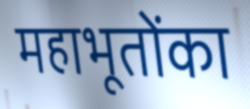
महाभूतोंका